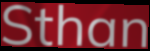
Sthan